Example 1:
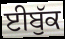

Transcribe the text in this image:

ਈਬੁੱਕ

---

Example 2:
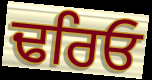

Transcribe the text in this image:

ਢਰਿਓ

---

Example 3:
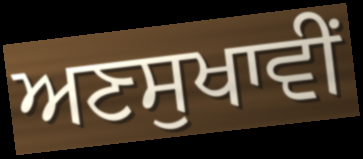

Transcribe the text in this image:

ਅਣਸੁਖਾਵੀਂ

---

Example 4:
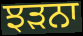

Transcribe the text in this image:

ਝੜਨਾ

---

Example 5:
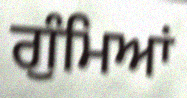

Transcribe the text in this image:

ਗੁੰਮਿਆਂ